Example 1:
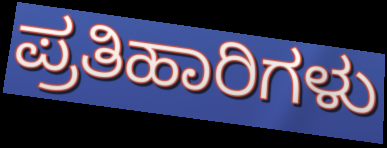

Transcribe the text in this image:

ಪ್ರತಿಹಾರಿಗಳು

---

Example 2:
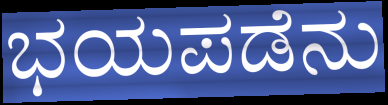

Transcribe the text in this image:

ಭಯಪಡೆನು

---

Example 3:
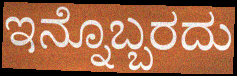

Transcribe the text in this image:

ಇನ್ನೊಬ್ಬರದು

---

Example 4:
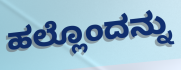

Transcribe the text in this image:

ಹಲ್ಲೊಂದನ್ನು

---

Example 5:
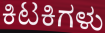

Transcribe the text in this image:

ಕಿಟಕಿಗಳು